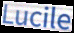
Lucile